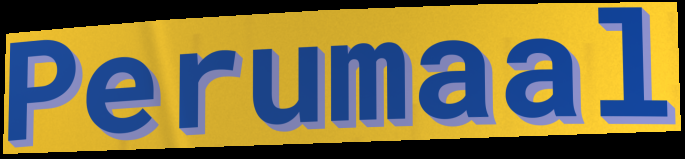
Perumaal